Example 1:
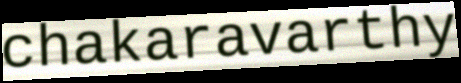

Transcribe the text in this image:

chakaravarthy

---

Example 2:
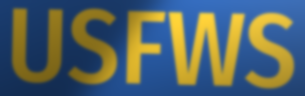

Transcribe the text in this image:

USFWS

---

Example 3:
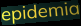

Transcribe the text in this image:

epidemia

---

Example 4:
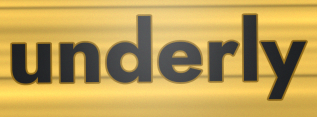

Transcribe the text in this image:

underly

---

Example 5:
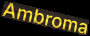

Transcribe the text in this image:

Ambroma